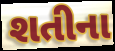
શતીના